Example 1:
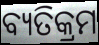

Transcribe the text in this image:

ବ୍ୟତିକ୍ରମ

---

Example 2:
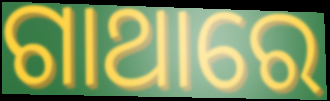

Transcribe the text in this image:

ଗାଥାରେ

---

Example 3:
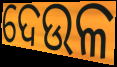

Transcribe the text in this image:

ଦେଉଳ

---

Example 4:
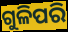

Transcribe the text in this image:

ଗୁଳିପରି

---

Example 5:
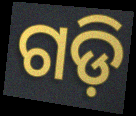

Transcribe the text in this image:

ଗଡ଼ି